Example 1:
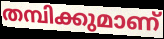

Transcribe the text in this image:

തമ്പിക്കുമാണ്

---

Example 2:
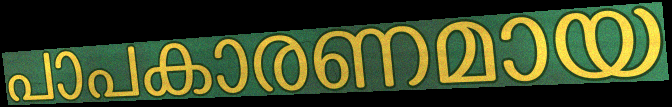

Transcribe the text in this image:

പാപകാരണമായ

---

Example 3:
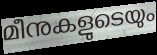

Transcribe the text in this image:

മീനുകളുടെയും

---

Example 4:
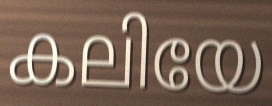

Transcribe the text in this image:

കലിയേ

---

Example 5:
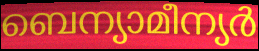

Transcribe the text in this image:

ബെന്യാമീന്യർ